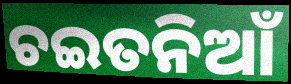
ଚଇତନିଆଁ